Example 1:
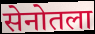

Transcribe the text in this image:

सेनोतला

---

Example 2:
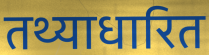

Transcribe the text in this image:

तथ्याधारित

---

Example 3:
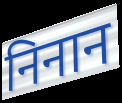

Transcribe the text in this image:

निनान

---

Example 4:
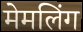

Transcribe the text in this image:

मेमलिंग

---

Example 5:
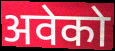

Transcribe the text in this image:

अवेको